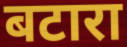
बटारा